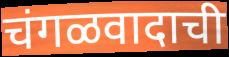
चंगळवादाची